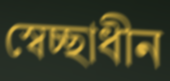
স্বেচ্ছাধীন